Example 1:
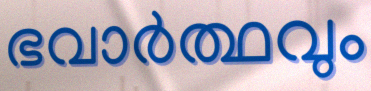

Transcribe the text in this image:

ഭവാർത്ഥവും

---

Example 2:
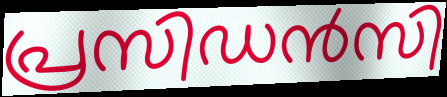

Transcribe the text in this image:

പ്രസിഡൻസി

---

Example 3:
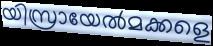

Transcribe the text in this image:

യിസ്രായേൽമക്കളെ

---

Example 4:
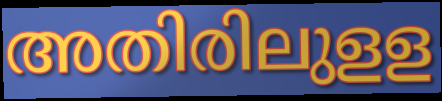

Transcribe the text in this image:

അതിരിലുളള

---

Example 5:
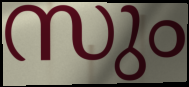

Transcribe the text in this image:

സും